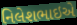
નિલેશભાઇએ